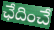
ఛేదించే